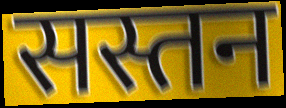
सस्तन